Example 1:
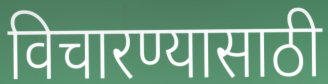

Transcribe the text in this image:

विचारण्यासाठी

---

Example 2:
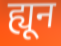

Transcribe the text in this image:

ह्यून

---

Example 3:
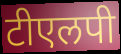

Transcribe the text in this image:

टीएलपी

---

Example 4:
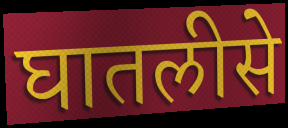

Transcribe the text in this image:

घातलीसे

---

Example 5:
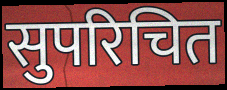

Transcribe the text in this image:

सुपरिचित